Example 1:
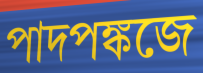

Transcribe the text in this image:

পাদপঙ্কজে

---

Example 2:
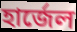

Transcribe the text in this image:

হার্জেল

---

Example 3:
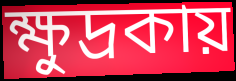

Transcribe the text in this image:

ক্ষুদ্রকায়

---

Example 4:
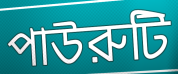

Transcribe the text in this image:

পাউরুটি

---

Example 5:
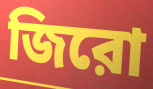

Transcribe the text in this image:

জিরো